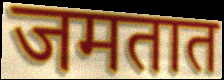
जमतात